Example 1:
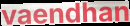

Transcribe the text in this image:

vaendhan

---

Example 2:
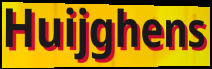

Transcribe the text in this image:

Huijghens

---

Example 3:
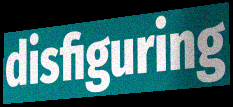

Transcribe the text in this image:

disfiguring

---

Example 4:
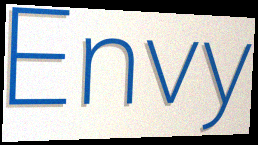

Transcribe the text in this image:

Envy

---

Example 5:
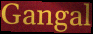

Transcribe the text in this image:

Gangal